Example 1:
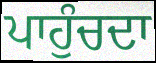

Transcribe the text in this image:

ਪਾਹੁੰਚਦਾ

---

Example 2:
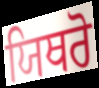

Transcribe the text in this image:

ਯਿਥਰੋ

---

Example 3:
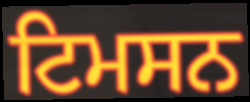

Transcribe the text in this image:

ਟਿਮਸਨ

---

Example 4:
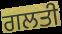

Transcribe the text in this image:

ਗਲਤੀ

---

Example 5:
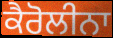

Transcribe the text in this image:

ਕੈਰੋਲੀਨਾ